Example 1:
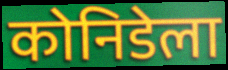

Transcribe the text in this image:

कोनिडेला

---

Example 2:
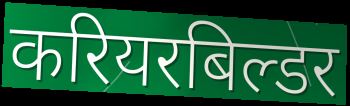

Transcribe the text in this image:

करियरबिल्डर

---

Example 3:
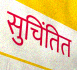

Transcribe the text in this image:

सुचिंतित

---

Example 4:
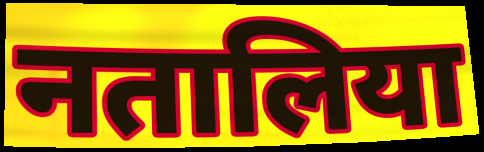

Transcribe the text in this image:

नतालिया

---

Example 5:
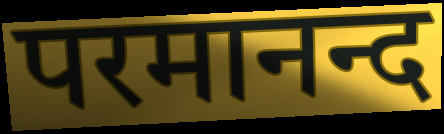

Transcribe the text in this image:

परमानन्द